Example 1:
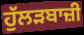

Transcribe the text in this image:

ਹੁੱਲੜਬਾਜ਼ੀ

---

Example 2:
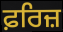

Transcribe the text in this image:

ਫ਼ਰਿਜ਼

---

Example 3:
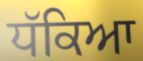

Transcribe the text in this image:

ਧੱਕਿਆ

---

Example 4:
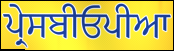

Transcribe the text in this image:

ਪ੍ਰੇਸਬੀਓਪੀਆ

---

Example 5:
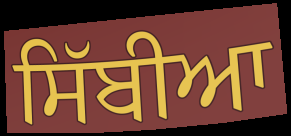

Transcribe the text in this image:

ਸਿੱਬੀਆ